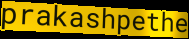
prakashpethe